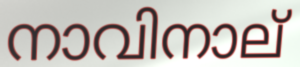
നാവിനാല്